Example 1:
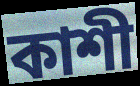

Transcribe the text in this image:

কাশী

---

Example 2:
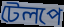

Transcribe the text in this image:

টেলপে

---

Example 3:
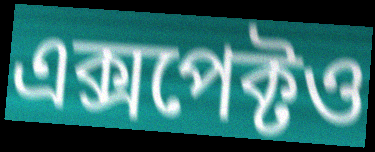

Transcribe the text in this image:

এক্সপেক্টও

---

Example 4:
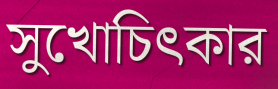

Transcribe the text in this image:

সুখোচিৎকার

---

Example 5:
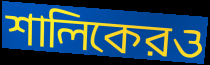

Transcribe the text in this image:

শালিকেরও